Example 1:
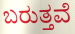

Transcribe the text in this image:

ಬರುತ್ತವೆ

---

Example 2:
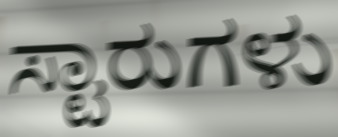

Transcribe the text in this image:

ಸ್ಟಾರುಗಳು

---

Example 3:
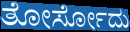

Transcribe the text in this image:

ತೋರ್ಸೋದು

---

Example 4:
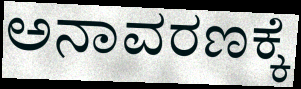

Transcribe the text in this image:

ಅನಾವರಣಕ್ಕೆ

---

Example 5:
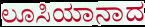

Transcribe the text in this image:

ಲೂಸಿಯಾನಾದ